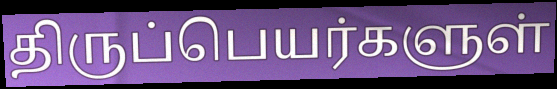
திருப்பெயர்களுள்